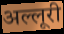
अल्लूरी